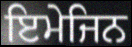
ਇਮੇਜਿਨ